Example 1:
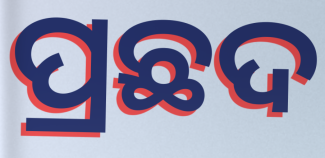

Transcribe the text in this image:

ପ୍ରଛଦ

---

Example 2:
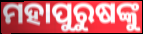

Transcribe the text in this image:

ମହାପୁରୁଷଙ୍କୁ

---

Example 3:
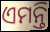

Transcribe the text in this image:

ଏମନ୍ତି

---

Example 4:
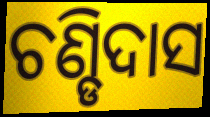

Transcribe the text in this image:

ଚଣ୍ଡିଦାସ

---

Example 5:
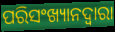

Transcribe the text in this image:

ପରିସଂଖ୍ୟାନଦ୍ଵାରା